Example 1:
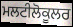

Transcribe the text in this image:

ਮਲਟੀਲੋਕੂਲਰ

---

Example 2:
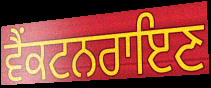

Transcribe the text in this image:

ਵੈਂਕਟਨਰਾਇਣ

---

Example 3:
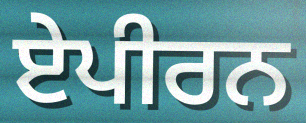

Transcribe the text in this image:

ਏਪੀਰਨ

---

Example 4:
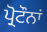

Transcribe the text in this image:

ਪ੍ਰੋਟੌਨਾਂ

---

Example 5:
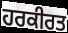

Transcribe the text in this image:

ਹਰਕੀਰਤ